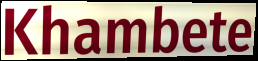
Khambete